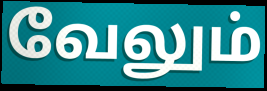
வேலும்